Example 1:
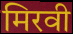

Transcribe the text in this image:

मिरवी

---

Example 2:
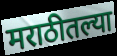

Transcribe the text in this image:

मराठीतल्या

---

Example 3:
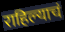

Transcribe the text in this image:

राहिल्याचं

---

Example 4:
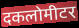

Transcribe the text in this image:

दकलोमीटर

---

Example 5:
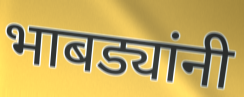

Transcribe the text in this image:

भाबड्यांनी